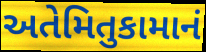
અતેમિતુકામાનં